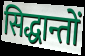
सिद्धान्तों